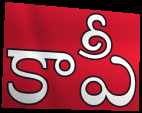
కాపీ